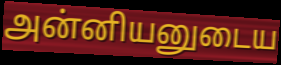
அன்னியனுடைய